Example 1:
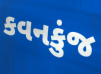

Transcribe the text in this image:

કવનકુંજ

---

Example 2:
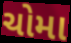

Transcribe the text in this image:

ચોમા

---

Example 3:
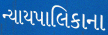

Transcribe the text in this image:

ન્યાયપાલિકાના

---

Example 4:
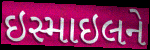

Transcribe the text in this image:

ઇસ્માઇલને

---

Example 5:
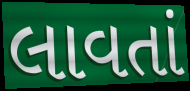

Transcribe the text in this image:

લાવતાં